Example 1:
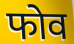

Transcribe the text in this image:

फोव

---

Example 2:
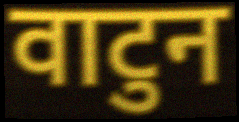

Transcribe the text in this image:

वाटुन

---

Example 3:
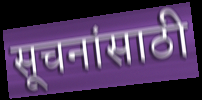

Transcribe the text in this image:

सूचनांसाठी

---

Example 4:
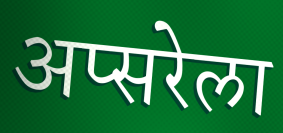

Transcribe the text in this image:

अप्सरेला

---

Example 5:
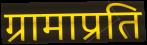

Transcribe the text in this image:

ग्रामाप्रति